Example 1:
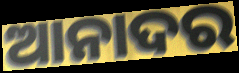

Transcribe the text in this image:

ଆନାଦର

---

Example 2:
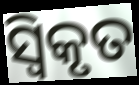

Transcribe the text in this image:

ସ୍ଵିକୃତ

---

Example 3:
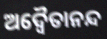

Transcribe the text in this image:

ଅଦ୍ଵୈତାନନ୍ଦ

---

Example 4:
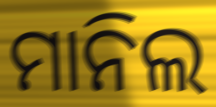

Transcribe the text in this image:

ମାନିଲ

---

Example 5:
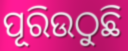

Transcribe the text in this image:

ପୂରିଉଠୁଛି